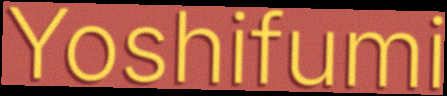
Yoshifumi